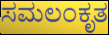
ಸಮಲಂಕೃತ